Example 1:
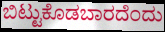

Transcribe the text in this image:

ಬಿಟ್ಟುಕೊಡಬಾರದೆಂದು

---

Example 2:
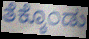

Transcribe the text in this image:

ತೆಕ್ಕೊಂಡು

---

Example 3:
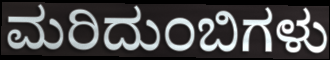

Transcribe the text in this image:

ಮರಿದುಂಬಿಗಳು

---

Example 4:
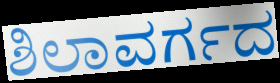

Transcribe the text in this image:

ಶಿಲಾವರ್ಗದ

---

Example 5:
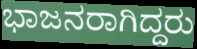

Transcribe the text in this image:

ಭಾಜನರಾಗಿದ್ದರು